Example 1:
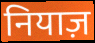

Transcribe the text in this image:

नियाज़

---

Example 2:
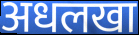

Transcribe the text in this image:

अधलखा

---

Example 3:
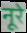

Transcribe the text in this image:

नूरे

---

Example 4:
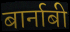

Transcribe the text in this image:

बार्नाबी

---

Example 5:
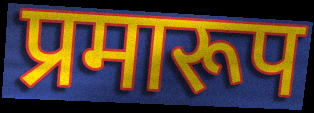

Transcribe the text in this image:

प्रमारूप